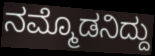
ನಮ್ಮೊಡನಿದ್ದು